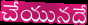
చేయునదే